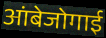
आंबेजोगाई